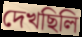
দেখছিলি